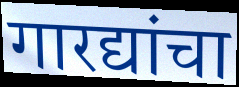
गारद्यांचा